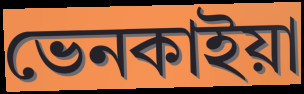
ভেনকাইয়া